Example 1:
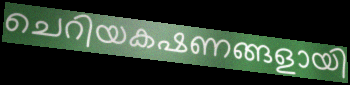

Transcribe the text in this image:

ചെറിയകഷണങ്ങളായി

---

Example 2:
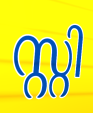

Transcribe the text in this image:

സ്റ്റി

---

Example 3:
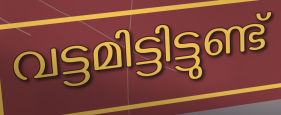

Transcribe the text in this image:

വട്ടമിട്ടിട്ടുണ്ട്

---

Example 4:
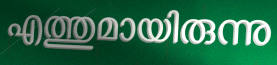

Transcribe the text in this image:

എത്തുമായിരുന്നു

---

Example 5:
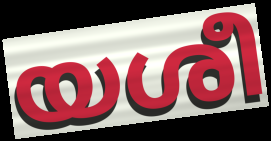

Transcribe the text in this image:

യശീ